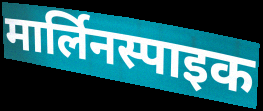
मार्लिनस्पाइक